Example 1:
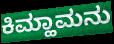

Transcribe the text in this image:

ಕಿಮ್ಹಾಮನು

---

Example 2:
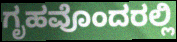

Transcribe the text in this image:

ಗೃಹವೊಂದರಲ್ಲಿ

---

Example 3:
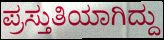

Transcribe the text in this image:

ಪ್ರಸ್ತುತಿಯಾಗಿದ್ದು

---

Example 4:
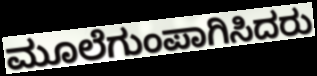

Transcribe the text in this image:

ಮೂಲೆಗುಂಪಾಗಿಸಿದರು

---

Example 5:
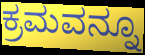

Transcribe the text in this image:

ಕ್ರಮವನ್ನೂ